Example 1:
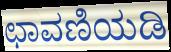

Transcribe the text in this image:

ಛಾವಣಿಯಡಿ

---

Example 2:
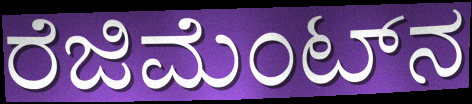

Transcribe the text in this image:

ರೆಜಿಮೆಂಟ್‌ನ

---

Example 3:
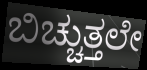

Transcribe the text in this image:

ಬಿಚ್ಚುತ್ತಲೇ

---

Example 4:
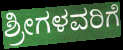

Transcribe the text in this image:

ಶ್ರೀಗಳವರಿಗೆ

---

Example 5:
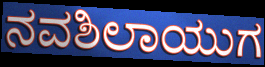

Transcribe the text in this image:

ನವಶಿಲಾಯುಗ